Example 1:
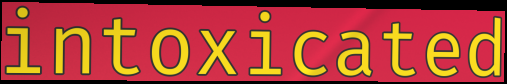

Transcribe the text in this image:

intoxicated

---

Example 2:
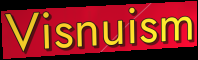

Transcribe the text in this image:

Visnuism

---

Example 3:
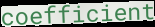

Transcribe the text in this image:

coefficient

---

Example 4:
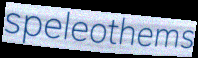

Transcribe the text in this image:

speleothems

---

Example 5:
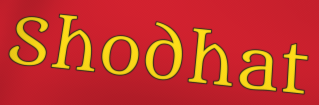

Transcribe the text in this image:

Shodhat